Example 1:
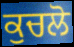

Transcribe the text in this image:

ਕੁਚਲੋ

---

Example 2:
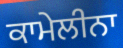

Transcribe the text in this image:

ਕਾਮੇਲੀਨਾ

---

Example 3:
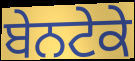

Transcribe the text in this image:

ਬੇਨਟੇਕੇ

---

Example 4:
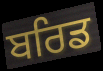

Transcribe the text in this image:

ਬਰਿਡ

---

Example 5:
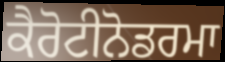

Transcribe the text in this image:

ਕੈਰੋਟੀਨੋਡਰਮਾ